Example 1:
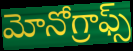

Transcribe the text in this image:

మోనోగ్రాఫ్స్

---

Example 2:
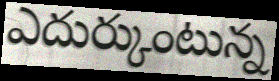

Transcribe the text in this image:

ఎదుర్కుంటున్న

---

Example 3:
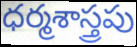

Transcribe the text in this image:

ధర్మశాస్త్రపు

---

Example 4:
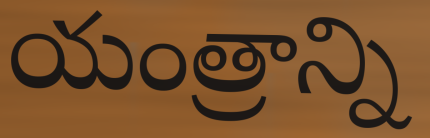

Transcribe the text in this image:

యంత్రాన్ని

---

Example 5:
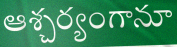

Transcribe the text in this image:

ఆశ్చర్యంగానూ